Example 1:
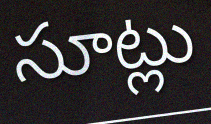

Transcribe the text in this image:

సూట్లు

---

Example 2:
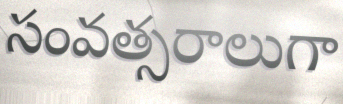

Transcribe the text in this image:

సంవత్సరాలుగా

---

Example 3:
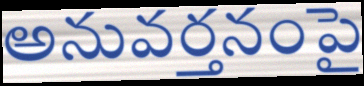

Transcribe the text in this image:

అనువర్తనంపై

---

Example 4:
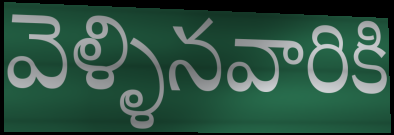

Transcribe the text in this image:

వెళ్ళినవారికి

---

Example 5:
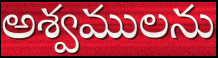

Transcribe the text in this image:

అశ్వములను